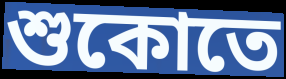
শুকোতে